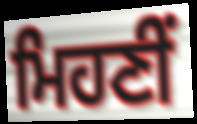
ਮਿਹਣੀਂ